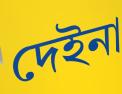
দেইনা